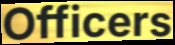
Officers